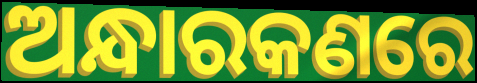
ଅନ୍ଧାରକଣରେ